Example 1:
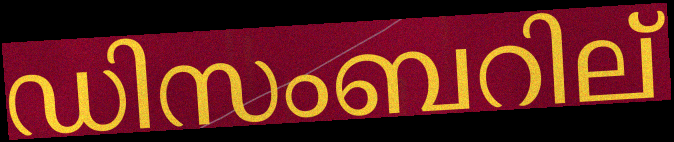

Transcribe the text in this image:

ഡിസംബറില്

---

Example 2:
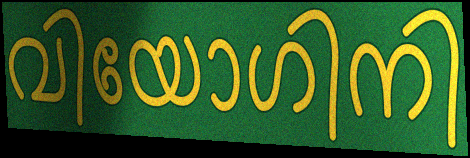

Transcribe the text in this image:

വിയോഗിനി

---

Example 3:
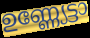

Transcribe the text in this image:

ഉണ്ണ്യേട്ടാ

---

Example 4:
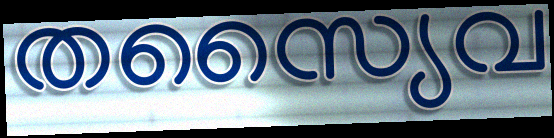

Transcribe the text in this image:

തസ്യൈവ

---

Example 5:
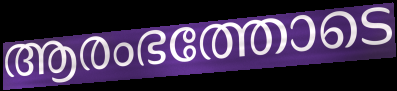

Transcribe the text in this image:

ആരംഭത്തോടെ